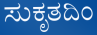
ಸುಕೃತದಿಂ